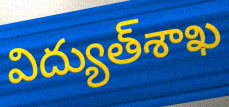
విద్యుత్‌శాఖ